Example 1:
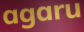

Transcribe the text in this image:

agaru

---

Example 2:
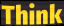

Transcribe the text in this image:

Think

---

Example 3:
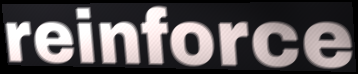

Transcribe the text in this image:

reinforce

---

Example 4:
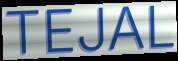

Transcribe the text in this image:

TEJAL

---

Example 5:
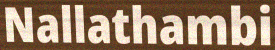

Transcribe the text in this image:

Nallathambi